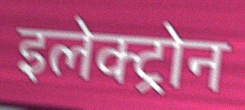
इलेक्ट्रोन